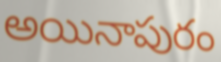
అయినాపురం